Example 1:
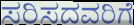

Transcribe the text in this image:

ಸರಿಸದವರಿಗೆ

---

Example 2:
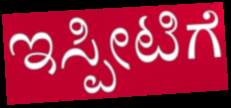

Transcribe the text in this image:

ಇಸ್ಪೀಟಿಗೆ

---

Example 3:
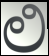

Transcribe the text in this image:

ಲಿ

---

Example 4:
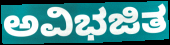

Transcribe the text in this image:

ಅವಿಭಜಿತ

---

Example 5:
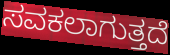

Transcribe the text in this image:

ಸವಕಲಾಗುತ್ತದೆ